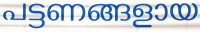
പട്ടണങ്ങളായ